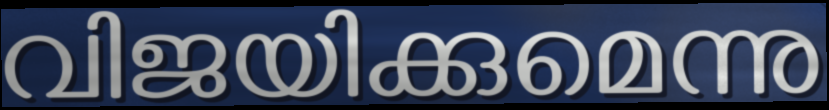
വിജയിക്കുമെന്നു